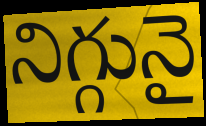
నిగ్గునై